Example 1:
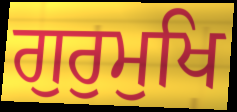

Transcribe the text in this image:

ਗੁਰੁਮੁਖਿ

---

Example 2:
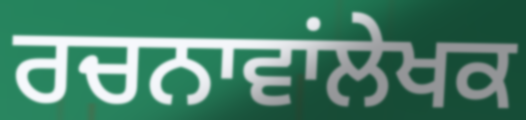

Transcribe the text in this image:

ਰਚਨਾਵਾਂਲੇਖਕ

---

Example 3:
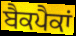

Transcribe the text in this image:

ਬੈਕਪੈਕਾਂ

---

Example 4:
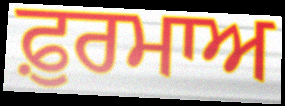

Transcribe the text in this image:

ਫ਼ੁਰਮਾਅ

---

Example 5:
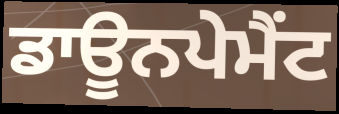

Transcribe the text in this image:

ਡਾਊਨਪੇਮੈਂਟ